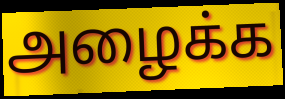
அழைக்க